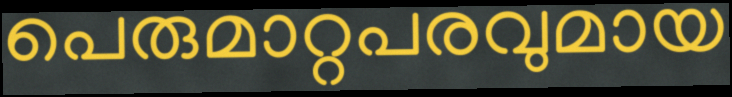
പെരുമാറ്റപരവുമായ